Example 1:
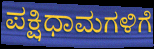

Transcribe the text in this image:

ಪಕ್ಷಿಧಾಮಗಳಿಗೆ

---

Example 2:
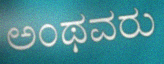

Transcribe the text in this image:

ಅಂಥವರು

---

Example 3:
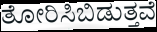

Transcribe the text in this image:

ತೋರಿಸಿಬಿಡುತ್ತವೆ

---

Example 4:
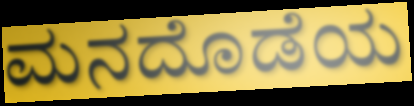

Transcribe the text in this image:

ಮನದೊಡೆಯ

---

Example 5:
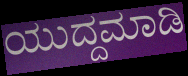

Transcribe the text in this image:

ಯುದ್ದಮಾಡಿ